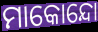
ମାକୋନ୍ଦୋ